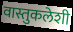
वास्तुकलेशी